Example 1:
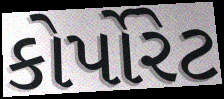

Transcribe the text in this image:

કોર્પોરેટ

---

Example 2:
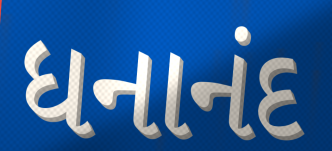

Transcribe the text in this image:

ધનાનંદ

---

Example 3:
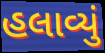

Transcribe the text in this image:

હલાવ્યું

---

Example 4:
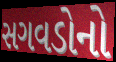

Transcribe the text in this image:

સગવડોનો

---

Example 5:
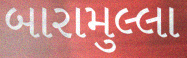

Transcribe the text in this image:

બારામુલ્લા